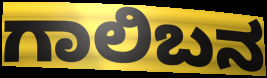
ಗಾಲಿಬನ